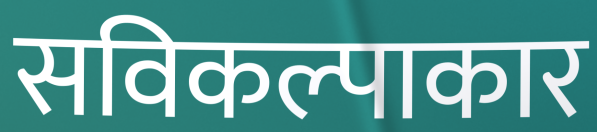
सविकल्पाकार